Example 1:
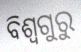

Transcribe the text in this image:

ବିଶ୍ୱଗୁରୁ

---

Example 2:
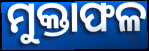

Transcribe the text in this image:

ମୁକ୍ତାଫଳ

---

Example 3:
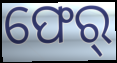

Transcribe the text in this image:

ଫେର୍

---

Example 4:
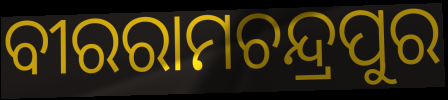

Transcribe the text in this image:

ବୀରରାମଚନ୍ଦ୍ରପୁର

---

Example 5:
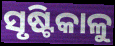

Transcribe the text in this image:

ସୃଷ୍ଟିକାଳୁ